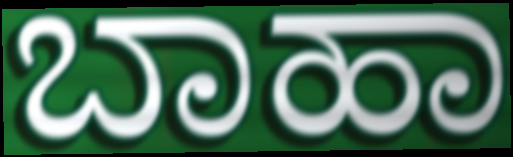
ಬಾಹಾ